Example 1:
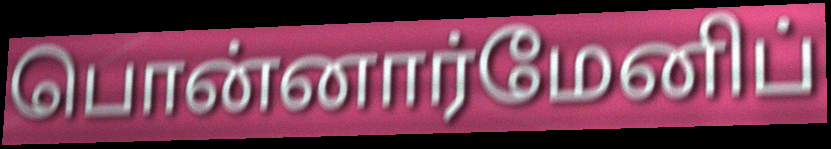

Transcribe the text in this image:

பொன்னார்மேனிப்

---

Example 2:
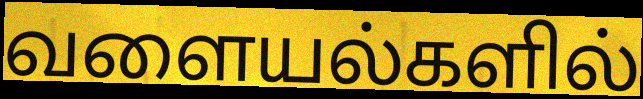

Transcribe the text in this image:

வளையல்களில்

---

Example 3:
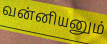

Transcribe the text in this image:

வன்னியனும்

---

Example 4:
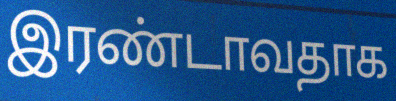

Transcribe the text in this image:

இரண்டாவதாக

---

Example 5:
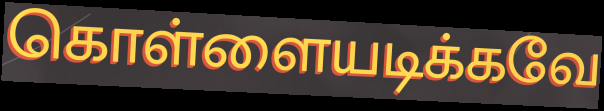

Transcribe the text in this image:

கொள்ளையடிக்கவே